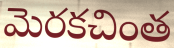
మెరకచింత